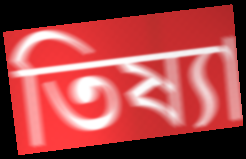
তিষ্যা